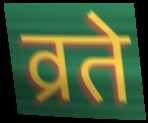
व्रते